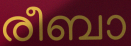
രീബാ